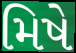
મિષે